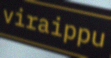
viraippu